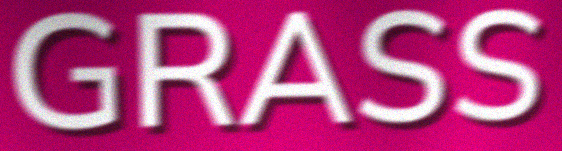
GRASS